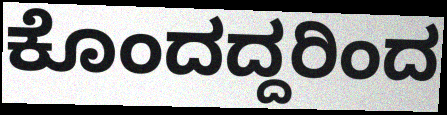
ಕೊಂದದ್ದರಿಂದ